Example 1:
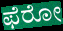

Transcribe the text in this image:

ಫೆರೋ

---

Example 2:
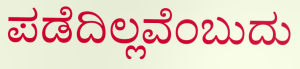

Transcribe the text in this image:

ಪಡೆದಿಲ್ಲವೆಂಬುದು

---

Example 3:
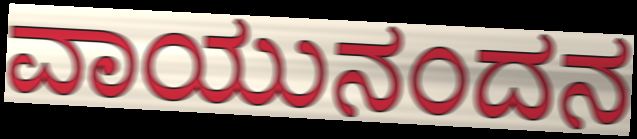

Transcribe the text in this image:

ವಾಯುನಂದನ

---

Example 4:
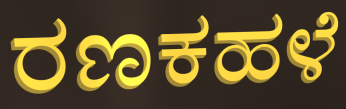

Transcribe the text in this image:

ರಣಕಹಳೆ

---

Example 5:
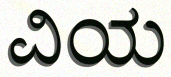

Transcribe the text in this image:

ವಿಯ